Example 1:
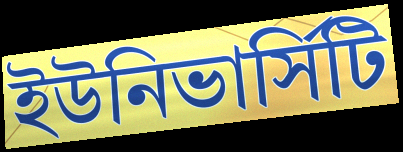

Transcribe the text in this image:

ইউনিভার্সিটি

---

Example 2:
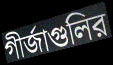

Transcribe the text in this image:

গীর্জাগুলির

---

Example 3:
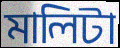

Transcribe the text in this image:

মালিটা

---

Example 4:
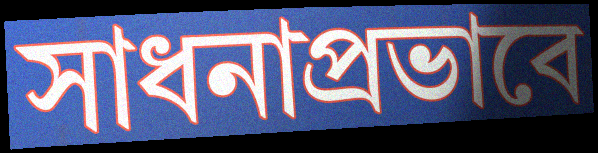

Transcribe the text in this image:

সাধনাপ্রভাবে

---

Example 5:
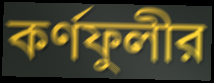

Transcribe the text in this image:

কর্ণফুলীর